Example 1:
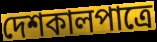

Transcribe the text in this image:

দেশকালপাত্রে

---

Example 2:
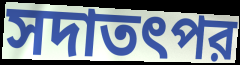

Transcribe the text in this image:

সদাতৎপর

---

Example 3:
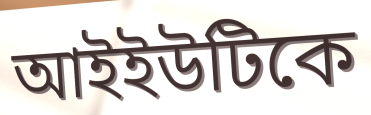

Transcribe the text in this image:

আইইউটিকে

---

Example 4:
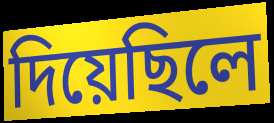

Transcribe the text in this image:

দিয়েছিলে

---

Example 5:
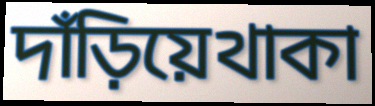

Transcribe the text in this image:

দাঁড়িয়েথাকা